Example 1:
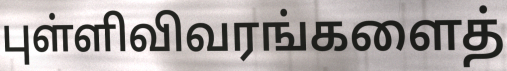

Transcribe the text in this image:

புள்ளிவிவரங்களைத்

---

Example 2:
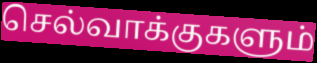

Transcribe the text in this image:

செல்வாக்குகளும்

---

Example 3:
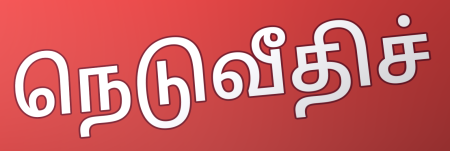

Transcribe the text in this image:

நெடுவீதிச்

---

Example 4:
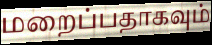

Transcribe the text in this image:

மறைப்பதாகவும்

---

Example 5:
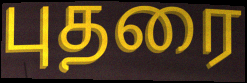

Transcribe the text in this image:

புதரை